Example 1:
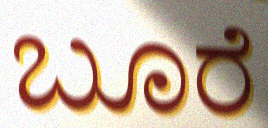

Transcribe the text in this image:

ಬೂರೆ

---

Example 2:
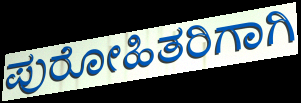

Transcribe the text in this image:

ಪುರೋಹಿತರಿಗಾಗಿ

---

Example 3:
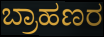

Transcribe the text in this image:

ಬ್ರಾಹಣರ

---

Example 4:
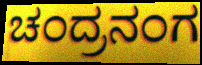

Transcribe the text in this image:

ಚಂದ್ರನಂಗ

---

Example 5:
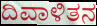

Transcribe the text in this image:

ದಿವಾಳಿತನ